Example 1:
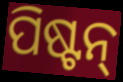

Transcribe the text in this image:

ପିଷ୍ଟନ୍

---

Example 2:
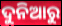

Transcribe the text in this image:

ଦୁନିଆରୁ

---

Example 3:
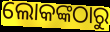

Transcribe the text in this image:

ଲୋକଙ୍କଠାରୁ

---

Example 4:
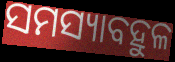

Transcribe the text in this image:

ସମସ୍ୟାବହୁଳ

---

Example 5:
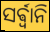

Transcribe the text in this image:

ସର୍ଵ୍ଵାନି